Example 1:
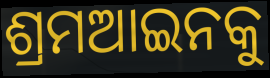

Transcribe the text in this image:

ଶ୍ରମଆଇନକୁ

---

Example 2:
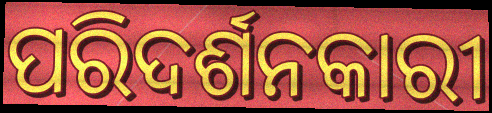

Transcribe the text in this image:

ପରିଦର୍ଶନକାରୀ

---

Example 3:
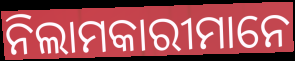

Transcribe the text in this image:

ନିଲାମକାରୀମାନେ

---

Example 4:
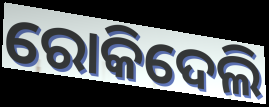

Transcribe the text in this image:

ରୋକିଦେଲି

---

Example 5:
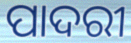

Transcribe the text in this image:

ପାଦରୀ